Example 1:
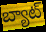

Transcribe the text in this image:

బ్యాట్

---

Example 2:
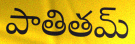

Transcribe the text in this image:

పాతితమ్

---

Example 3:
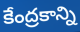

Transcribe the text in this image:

కేంద్రకాన్ని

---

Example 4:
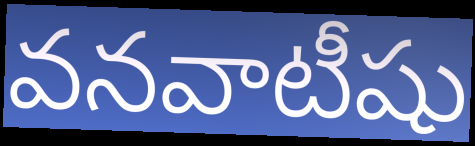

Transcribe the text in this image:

వనవాటీషు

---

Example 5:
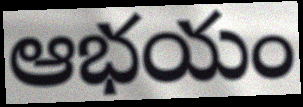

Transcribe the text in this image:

ఆభయం